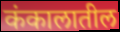
कंकालातील